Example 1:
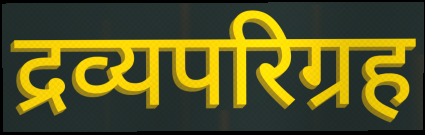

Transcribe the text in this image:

द्रव्यपरिग्रह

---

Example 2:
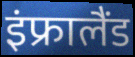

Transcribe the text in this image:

इंफ्रालैंड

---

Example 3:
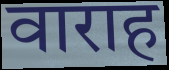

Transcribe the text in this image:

वाराह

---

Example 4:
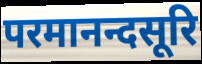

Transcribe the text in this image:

परमानन्दसूरि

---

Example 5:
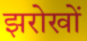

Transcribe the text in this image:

झरोखों